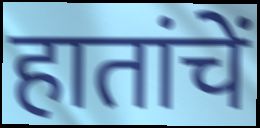
हातांचें